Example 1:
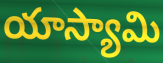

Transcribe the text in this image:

యాస్యామి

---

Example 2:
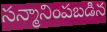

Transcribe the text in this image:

సన్మానింపబడిన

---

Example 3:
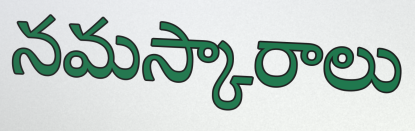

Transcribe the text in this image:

నమస్కారాలు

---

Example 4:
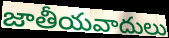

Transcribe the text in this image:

జాతీయవాదులు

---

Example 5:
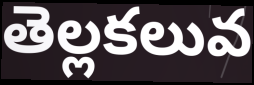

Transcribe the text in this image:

తెల్లకలువ